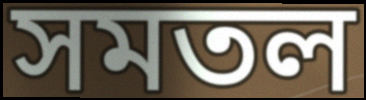
সমতল